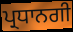
ਪ੍ਰਧਾਨਗੀ